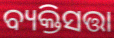
ବ୍ୟକ୍ତିସତ୍ତା